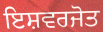
ਇਸ਼ਵਰਜੋਤ